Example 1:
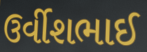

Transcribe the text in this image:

ઉર્વીશભાઈ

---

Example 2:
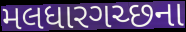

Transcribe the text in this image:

મલધારગચ્છના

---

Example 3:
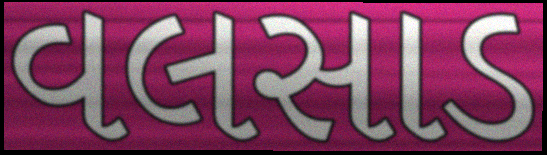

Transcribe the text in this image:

વલસાડ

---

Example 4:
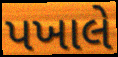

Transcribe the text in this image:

પખાલે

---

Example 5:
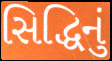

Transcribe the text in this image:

સિદ્ધિનું